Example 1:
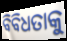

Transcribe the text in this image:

ବିବିଧତାକୁ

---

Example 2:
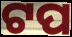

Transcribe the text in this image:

ଟପ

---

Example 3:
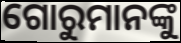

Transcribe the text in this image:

ଗୋରୁମାନଙ୍କୁ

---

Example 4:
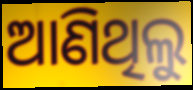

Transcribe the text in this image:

ଆଣିଥିଲୁ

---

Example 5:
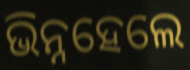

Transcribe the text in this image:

ଭିନ୍ନହେଲେ